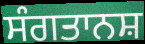
ਸੰਗਤਾਨਸ਼